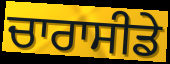
ਚਾਰਾਸੀਡੇ